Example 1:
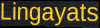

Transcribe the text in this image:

Lingayats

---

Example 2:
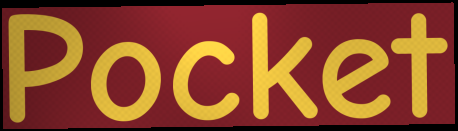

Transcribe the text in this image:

Pocket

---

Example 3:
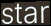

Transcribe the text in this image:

star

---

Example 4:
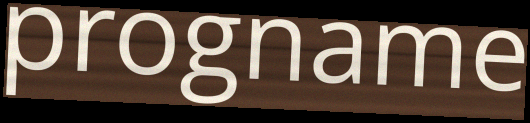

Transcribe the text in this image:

progname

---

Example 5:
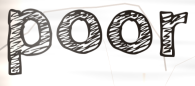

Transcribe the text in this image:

poor